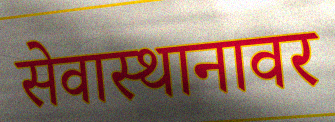
सेवास्थानावर